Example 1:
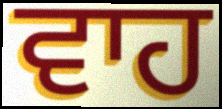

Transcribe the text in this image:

ਵਾਹ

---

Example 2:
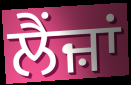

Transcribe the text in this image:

ਲੈਂਜ਼ਾਂ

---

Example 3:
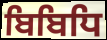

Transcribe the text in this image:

ਬਿਬਿਧਿ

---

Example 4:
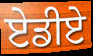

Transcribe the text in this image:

ਏਡੀਏ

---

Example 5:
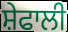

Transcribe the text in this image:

ਸ਼ੇਫਾਲੀ